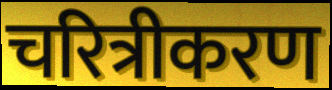
चरित्रीकरण